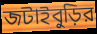
জটাইবুড়ির